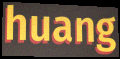
huang